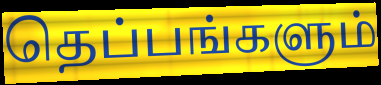
தெப்பங்களும்